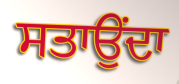
ਸਤਾਉਂਦਾ